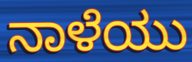
ನಾಳೆಯು